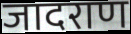
जादराण